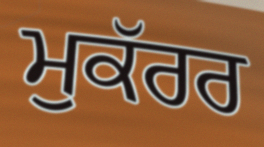
ਮੁਕੱਰਰ